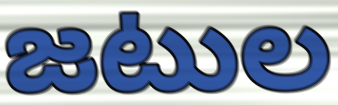
జటుల